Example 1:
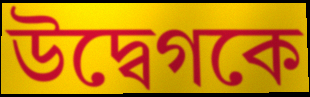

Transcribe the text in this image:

উদ্বেগকে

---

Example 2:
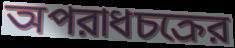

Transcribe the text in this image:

অপরাধচক্রের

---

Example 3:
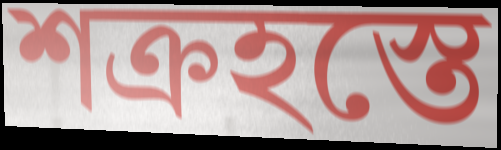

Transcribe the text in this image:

শক্রহস্তে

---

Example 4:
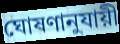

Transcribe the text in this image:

ঘোষণানুযায়ী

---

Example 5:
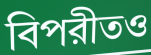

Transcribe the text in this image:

বিপরীতও